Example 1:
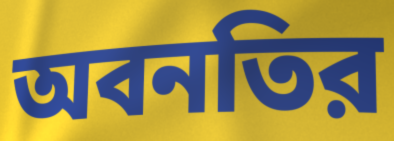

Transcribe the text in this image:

অবনতির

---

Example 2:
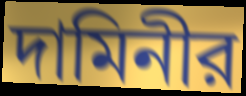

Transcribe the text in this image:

দামিনীর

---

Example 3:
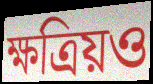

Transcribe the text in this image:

ক্ষত্রিয়ও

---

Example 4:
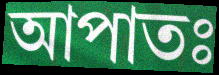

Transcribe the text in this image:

আপাতঃ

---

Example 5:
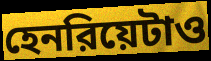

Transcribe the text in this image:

হেনরিয়েটাও